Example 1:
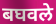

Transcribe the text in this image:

बघवले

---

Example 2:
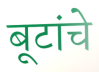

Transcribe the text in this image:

बूटांचे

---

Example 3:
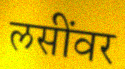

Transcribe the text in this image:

लसींवर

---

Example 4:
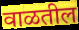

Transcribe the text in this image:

वाळतील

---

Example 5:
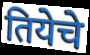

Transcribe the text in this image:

तियेचे